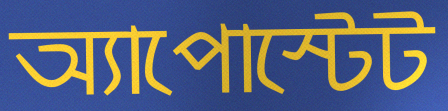
অ্যাপোস্টেট